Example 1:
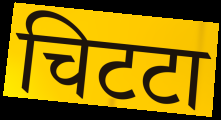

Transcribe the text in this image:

चिटटा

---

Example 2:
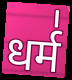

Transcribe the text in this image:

धर्म॑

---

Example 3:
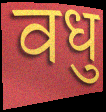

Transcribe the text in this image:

वधु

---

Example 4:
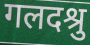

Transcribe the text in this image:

गलदश्रु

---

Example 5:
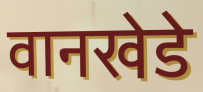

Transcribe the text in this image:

वानखेडे